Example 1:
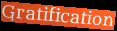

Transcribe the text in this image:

Gratification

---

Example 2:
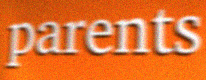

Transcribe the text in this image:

parents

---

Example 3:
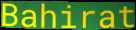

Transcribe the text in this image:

Bahirat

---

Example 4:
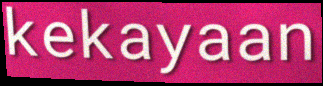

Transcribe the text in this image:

kekayaan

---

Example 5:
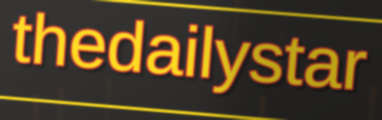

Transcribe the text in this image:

thedailystar